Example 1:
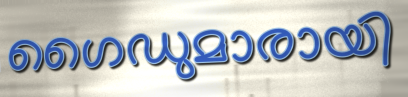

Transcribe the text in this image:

ഗൈഡുമാരായി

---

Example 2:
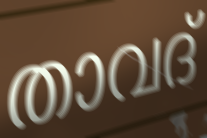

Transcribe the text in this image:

താവദ്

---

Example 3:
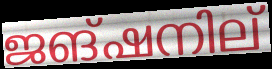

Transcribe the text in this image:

ജങ്ഷനില്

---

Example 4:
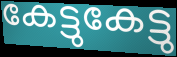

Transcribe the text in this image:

കേട്ടുകേട്ടു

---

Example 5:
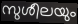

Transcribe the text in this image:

സുശീലയും